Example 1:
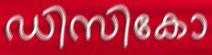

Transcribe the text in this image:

ഡിസികോ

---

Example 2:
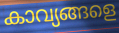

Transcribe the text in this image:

കാവ്യങ്ങളെ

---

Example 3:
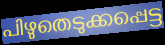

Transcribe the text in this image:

പിഴുതെടുക്കപ്പെട്ട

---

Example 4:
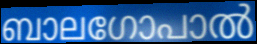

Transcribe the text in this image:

ബാലഗോപാൽ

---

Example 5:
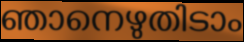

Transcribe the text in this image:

ഞാനെഴുതിടാം